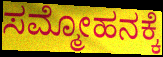
ಸಮ್ಮೋಹನಕ್ಕೆ